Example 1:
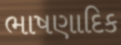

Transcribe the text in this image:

ભાષણાદિક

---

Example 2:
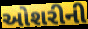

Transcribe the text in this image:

ઓશરીની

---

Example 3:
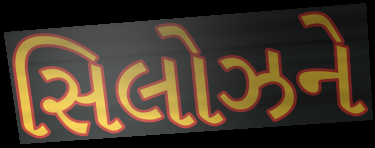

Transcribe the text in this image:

સિલોઝને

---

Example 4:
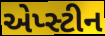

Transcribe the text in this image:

એપ્સ્ટીન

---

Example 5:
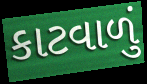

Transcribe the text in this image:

કાટવાળું